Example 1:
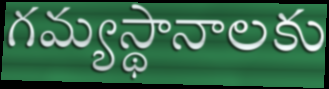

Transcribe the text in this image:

గమ్యస్థానాలకు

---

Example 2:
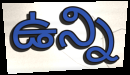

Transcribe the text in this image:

ఉన్ని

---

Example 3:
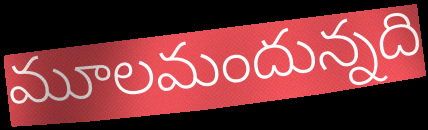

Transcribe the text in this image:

మూలమందున్నది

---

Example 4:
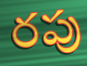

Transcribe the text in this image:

రపు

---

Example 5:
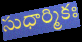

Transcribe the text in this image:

సుధార్మికః